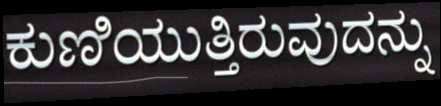
ಕುಣಿಯುತ್ತಿರುವುದನ್ನು